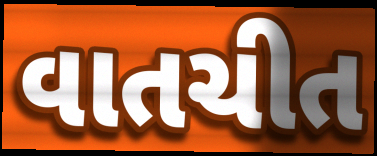
વાતચીત